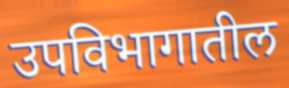
उपविभागातील